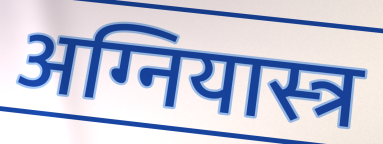
अग्नियास्त्र